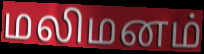
மலிமனம்